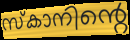
സ്കാനിന്റെ